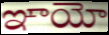
ఞాయో